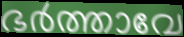
ഭർത്താവേ